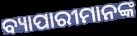
ବ୍ୟାପାରୀମାନଙ୍କ